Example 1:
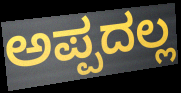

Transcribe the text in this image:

ಅಪ್ಪದಲ್ಲ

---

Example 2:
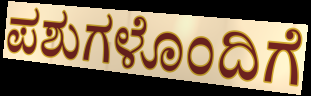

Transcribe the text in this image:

ಪಶುಗಳೊಂದಿಗೆ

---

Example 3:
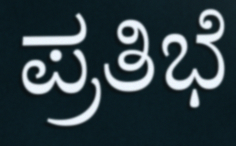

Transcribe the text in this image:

ಪ್ರತಿಭೆ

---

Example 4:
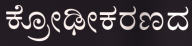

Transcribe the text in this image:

ಕ್ರೋಢೀಕರಣದ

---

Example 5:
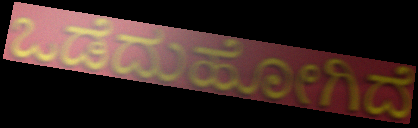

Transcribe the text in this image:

ಒಡೆದುಹೋಗಿದೆ